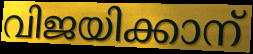
വിജയിക്കാന്